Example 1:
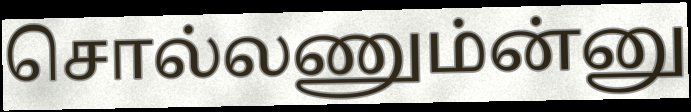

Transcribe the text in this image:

சொல்லணும்ன்னு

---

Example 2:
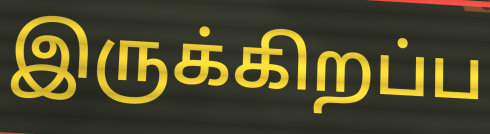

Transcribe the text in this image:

இருக்கிறப்ப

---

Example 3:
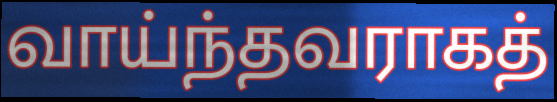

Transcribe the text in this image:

வாய்ந்தவராகத்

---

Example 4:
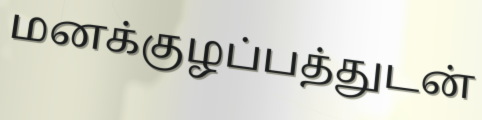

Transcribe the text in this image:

மனக்குழப்பத்துடன்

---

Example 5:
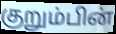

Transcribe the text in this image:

குறும்பின்